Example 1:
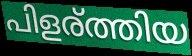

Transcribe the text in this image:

പിളര്ത്തിയ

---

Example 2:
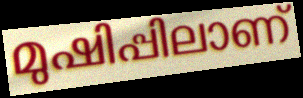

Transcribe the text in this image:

മുഷിപ്പിലാണ്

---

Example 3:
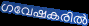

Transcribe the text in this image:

ഗവേഷകരിൽ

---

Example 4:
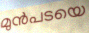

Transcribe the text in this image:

മുൻപടയെ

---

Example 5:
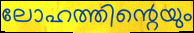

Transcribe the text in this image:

ലോഹത്തിന്റെയും